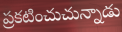
ప్రకటించుచున్నాడు